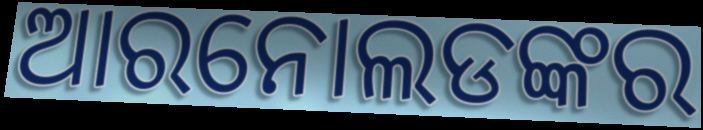
ଆରନୋଲଡଙ୍କର